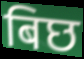
बिछ